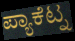
ಪ್ಯಾಕೆಟ್ನ